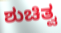
ಶುಚಿತ್ವ